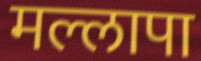
मल्लापा